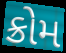
ક્રોમ